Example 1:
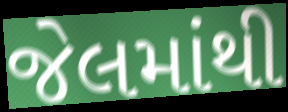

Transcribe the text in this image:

જેલમાંથી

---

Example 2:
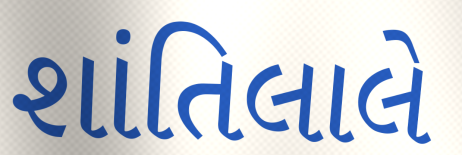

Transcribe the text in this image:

શાંતિલાલે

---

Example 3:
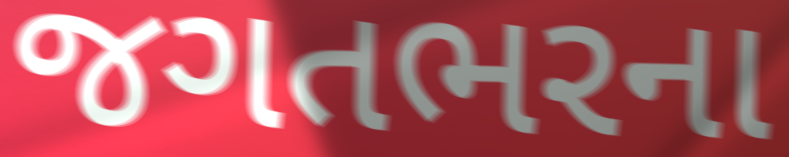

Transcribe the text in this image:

જગતભરના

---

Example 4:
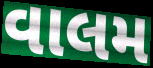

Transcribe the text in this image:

વાલમ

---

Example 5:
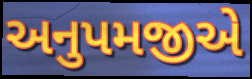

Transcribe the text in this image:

અનુપમજીએ